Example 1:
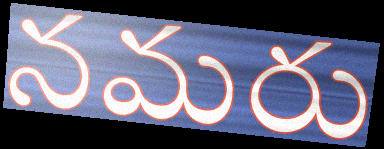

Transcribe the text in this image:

నమరు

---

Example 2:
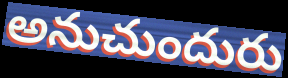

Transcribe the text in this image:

అనుచుందురు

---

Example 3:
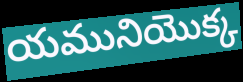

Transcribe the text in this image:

యమునియొక్క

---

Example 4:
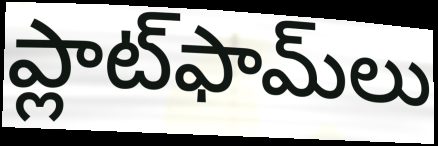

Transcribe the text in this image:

ప్లాట్‌ఫామ్‌లు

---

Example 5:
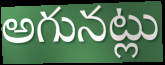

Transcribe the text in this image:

అగునట్లు